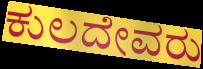
ಕುಲದೇವರು